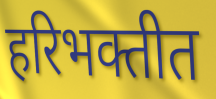
हरिभक्तीत